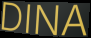
DINA